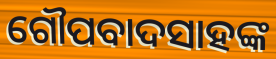
ଗୌପବାଦସାହଙ୍କ